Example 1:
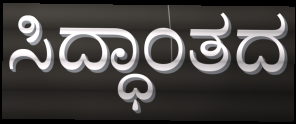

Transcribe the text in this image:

ಸಿದ್ಧಾಂತದ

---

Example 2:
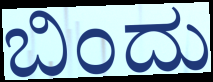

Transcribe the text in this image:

ಬಿಂದು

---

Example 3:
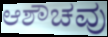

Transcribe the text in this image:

ಆಶೌಚವು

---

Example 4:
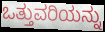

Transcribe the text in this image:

ಒತ್ತುವರಿಯನ್ನು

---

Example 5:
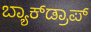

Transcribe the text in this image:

ಬ್ಯಾಕ್‌ಡ್ರಾಪ್